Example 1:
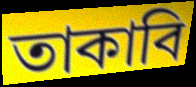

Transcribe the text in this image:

তাকাবি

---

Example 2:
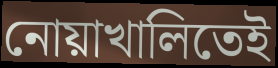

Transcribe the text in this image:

নোয়াখালিতেই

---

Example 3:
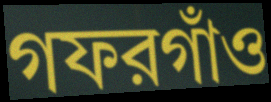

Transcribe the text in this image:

গফরগাঁও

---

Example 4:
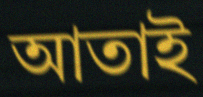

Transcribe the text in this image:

আতাই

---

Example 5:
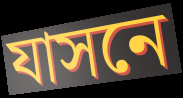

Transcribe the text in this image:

যাসনে